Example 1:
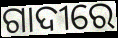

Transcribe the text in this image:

ଗାଦୀରେ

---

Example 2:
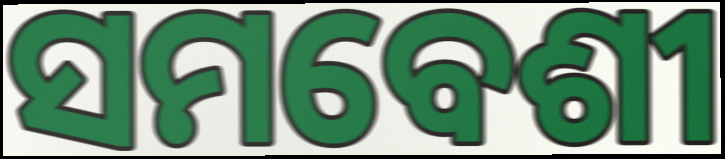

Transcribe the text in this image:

ସମବେଶୀ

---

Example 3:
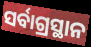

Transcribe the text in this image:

ସର୍ବାଗ୍ରସ୍ଥାନ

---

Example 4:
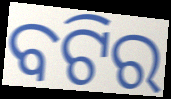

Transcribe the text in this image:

ବଟିର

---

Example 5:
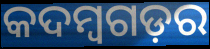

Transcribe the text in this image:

କଦମ୍ବଗଡ଼ର